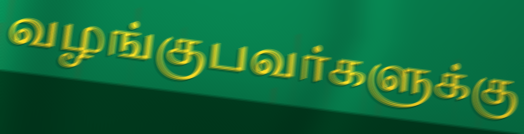
வழங்குபவர்களுக்கு